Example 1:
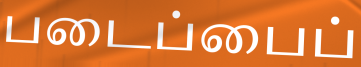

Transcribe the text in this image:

படைப்பைப்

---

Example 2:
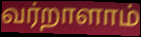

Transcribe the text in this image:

வர்றாளாம்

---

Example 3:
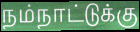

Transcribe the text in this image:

நம்நாட்டுக்கு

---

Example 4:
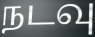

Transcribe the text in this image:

நடவு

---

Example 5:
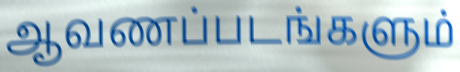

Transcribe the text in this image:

ஆவணப்படங்களும்